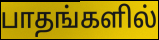
பாதங்களில்